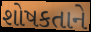
શોષકતાને